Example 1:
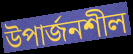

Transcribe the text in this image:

উপার্জনশীল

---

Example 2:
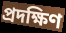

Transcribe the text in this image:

প্রদক্ষিণ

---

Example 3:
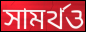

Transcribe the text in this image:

সামর্থও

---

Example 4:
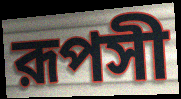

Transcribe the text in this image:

রূপসী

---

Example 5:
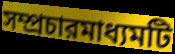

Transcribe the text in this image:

সম্প্রচারমাধ্যমটি